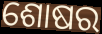
ଶୋଷର